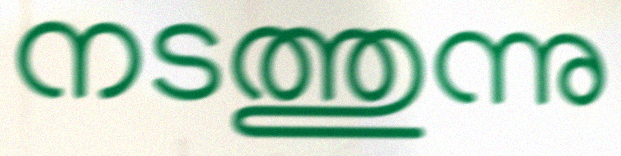
നടത്തുന്നു